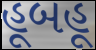
હૂબહૂ